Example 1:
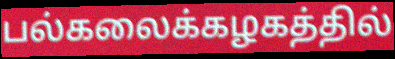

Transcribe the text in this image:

பல்கலைக்கழகத்தில்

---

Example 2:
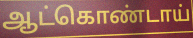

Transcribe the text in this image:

ஆட்கொண்டாய்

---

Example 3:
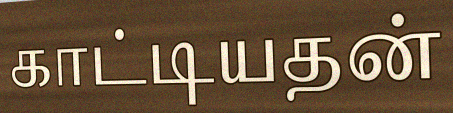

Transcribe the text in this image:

காட்டியதன்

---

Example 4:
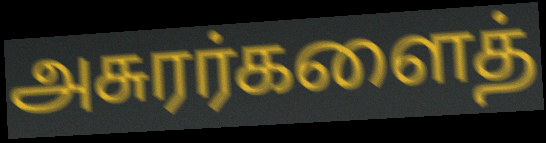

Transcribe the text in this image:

அசுரர்களைத்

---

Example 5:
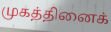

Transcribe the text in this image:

முகத்தினைக்